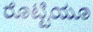
ರೊಟ್ಟಿಯೂ